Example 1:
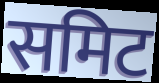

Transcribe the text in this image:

समिट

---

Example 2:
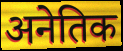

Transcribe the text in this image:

अनेतिक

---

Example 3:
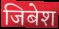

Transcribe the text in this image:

जिबेश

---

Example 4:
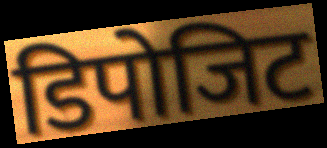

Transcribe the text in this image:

डिपोजिट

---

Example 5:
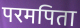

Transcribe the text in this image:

परमपिता